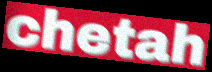
chetah